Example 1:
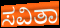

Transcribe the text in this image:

ಸವಿತಾ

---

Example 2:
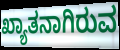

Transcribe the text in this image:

ಖ್ಯಾತನಾಗಿರುವ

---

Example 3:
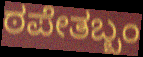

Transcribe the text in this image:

ಠಪೇತಬ್ಬಂ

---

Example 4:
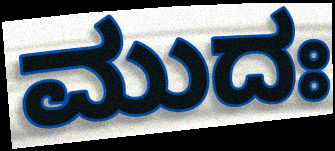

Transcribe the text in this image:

ಮುದಃ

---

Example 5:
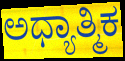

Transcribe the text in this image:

ಅಧ್ಯಾತ್ಮಿಕ